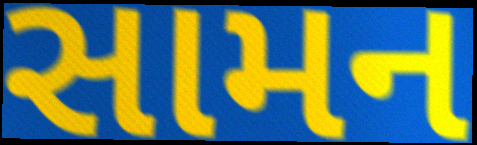
સામન